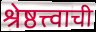
श्रेष्ठत्त्वाची